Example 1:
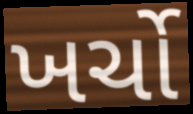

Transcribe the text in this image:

ખર્ચો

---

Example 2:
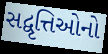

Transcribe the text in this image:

સદ્વૃત્તિઓનો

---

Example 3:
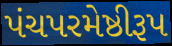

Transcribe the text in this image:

પંચપરમેષ્ઠીરૂપ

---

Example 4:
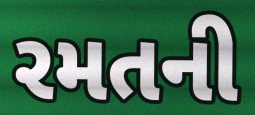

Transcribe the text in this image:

રમતની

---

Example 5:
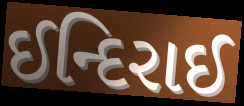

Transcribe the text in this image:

ઈન્દિરાઈ